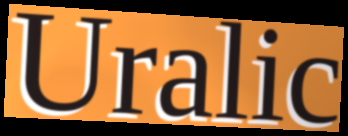
Uralic